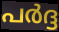
പർദ്ദ